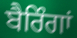
ਬੈਰਿੰਗਾਂ